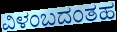
ವಿಳಂಬದಂತಹ